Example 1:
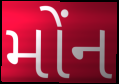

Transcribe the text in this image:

મોંન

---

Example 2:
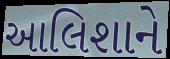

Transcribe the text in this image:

આલિશાને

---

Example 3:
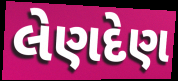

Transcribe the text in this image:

લેણદેણ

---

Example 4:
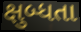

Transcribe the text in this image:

ક્ષુબ્ધતા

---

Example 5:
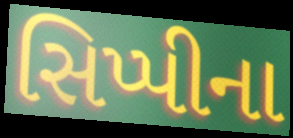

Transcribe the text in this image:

સિપ્પીના